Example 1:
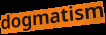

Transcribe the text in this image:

dogmatism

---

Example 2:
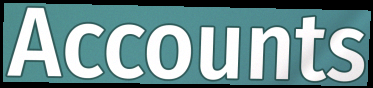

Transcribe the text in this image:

Accounts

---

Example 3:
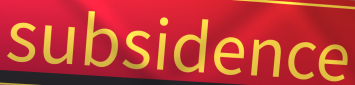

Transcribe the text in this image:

subsidence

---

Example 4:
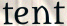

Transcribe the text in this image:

tent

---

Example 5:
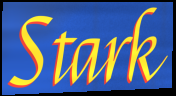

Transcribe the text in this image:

Stark